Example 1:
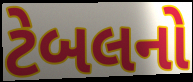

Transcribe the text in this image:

ટેબલનો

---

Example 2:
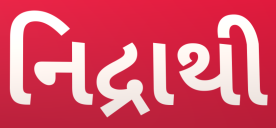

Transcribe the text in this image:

નિદ્રાથી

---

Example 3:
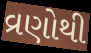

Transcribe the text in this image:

વ્રણોથી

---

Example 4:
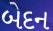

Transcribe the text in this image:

બેદન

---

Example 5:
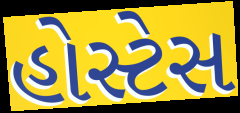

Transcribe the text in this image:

હોસ્ટેસ